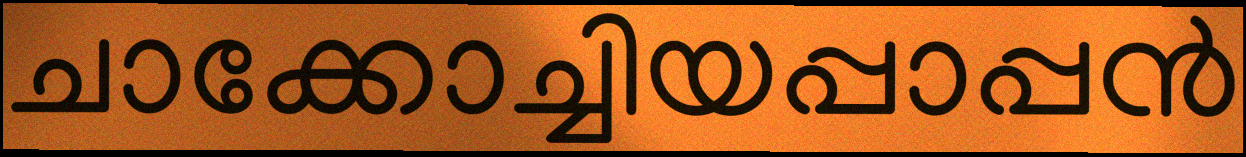
ചാക്കോച്ചിയപ്പാപ്പൻ